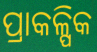
ପ୍ରାକଳ୍ପିକ